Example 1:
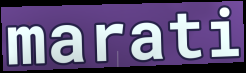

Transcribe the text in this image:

marati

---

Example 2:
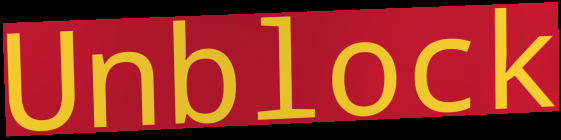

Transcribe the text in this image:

Unblock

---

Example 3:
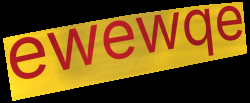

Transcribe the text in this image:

ewewqe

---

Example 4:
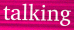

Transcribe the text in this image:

talking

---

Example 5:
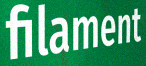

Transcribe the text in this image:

filament